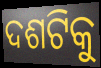
ଦଶଟିକୁ